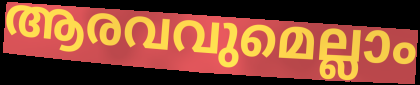
ആരവവുമെല്ലാം